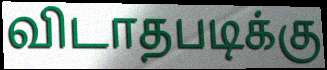
விடாதபடிக்கு